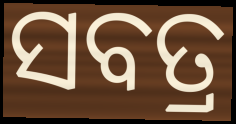
ସବତ୍ର